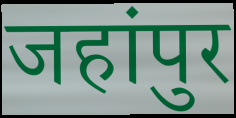
जहांपुर